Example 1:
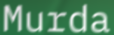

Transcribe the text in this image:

Murda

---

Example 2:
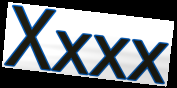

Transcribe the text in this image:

Xxxx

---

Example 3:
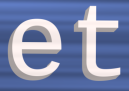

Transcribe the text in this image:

et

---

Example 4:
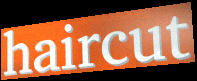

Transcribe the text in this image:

haircut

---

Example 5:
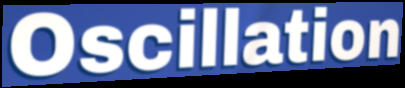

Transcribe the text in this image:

Oscillation